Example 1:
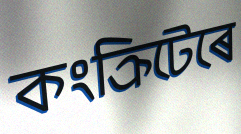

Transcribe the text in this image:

কংক্ৰিটেৰে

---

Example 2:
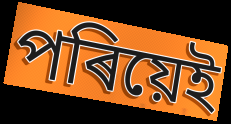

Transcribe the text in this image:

পৰিয়েই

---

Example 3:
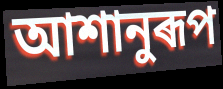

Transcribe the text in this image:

আশানুৰূপ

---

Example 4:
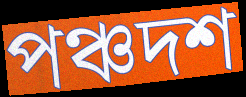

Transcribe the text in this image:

পঞ্চদশ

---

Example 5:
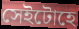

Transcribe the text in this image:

সেইটোহে